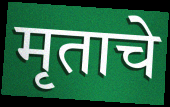
मृताचे